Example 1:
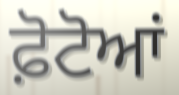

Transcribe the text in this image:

ਫ਼ੋਟੋਆਂ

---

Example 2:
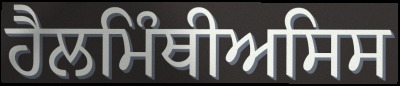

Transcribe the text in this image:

ਹੈਲਮਿੰਥੀਅਸਿਸ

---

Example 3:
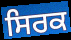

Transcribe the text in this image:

ਸਿਰਕ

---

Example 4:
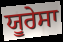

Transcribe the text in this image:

ਯੂਰੇਸਾ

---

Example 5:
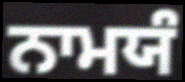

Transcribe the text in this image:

ਨਾਮਯੰ